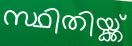
സ്ഥിതിയ്ക്ക്